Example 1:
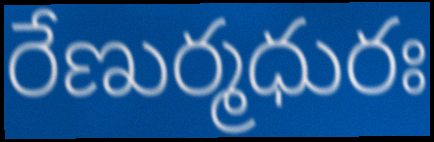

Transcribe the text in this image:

రేణుర్మధురః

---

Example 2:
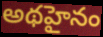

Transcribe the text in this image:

అథహైనం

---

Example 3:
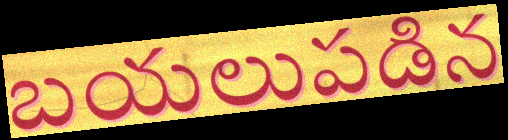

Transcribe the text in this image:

బయలుపడిన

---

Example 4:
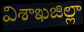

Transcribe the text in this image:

విశాఖజిల్లా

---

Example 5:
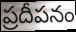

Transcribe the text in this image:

ప్రదీపనం